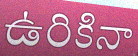
ఉరికినా